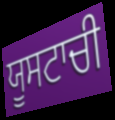
ਯੂਸਟਾਚੀ